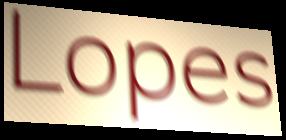
Lopes